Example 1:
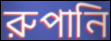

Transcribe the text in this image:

রুপানি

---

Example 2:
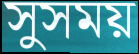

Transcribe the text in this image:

সুসময়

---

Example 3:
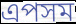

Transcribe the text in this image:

এপসম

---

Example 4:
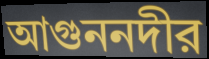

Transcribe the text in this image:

আগুননদীর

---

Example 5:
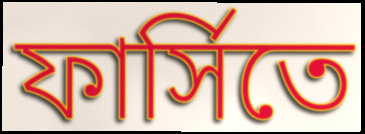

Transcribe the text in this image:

ফার্সিতে